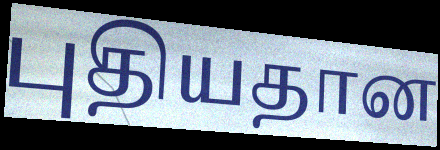
புதியதான